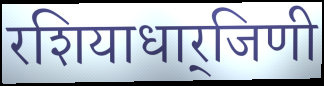
रशियाधार्जिणी